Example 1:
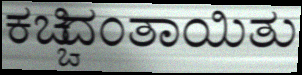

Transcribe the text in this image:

ಕಚ್ಚಿದಂತಾಯಿತು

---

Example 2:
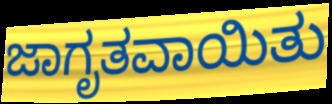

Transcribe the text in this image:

ಜಾಗೃತವಾಯಿತು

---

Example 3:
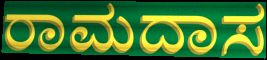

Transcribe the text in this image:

ರಾಮದಾಸ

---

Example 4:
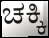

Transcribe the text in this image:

ಚಕ್ಕಿ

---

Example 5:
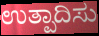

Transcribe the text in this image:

ಉತ್ಪಾದಿಸು